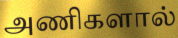
அணிகளால்